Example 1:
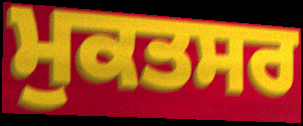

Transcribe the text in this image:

ਮੁਕਤਸਰ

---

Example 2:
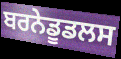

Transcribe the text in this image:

ਬਰਨੇਡੂਡਲਸ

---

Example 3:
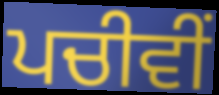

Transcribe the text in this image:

ਪਚੀਵੀਂ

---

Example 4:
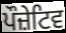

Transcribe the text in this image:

ਪੌਜ਼ੇਟਿਵ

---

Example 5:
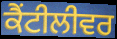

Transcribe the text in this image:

ਕੈਂਟੀਲੀਵਰ